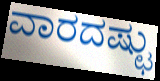
ವಾರದಷ್ಟು